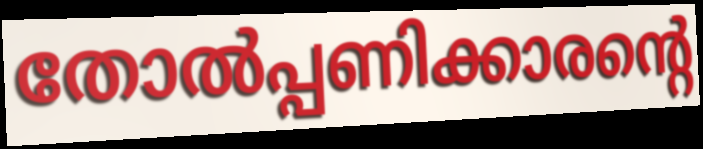
തോൽപ്പണിക്കാരന്റെ